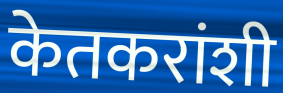
केतकरांशी